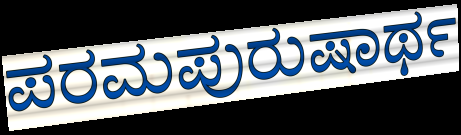
ಪರಮಪುರುಷಾರ್ಥ